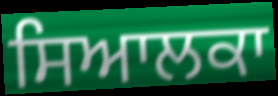
ਸਿਆਲਕਾ